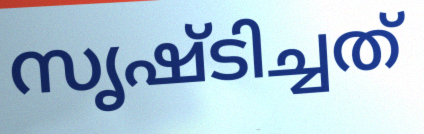
സൃഷ്ടിച്ചത്